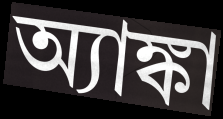
অ্যাঙ্কা